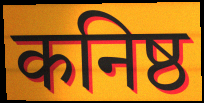
कनिष्ठ